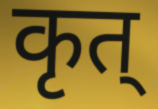
कृत्